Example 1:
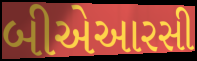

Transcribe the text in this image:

બીએઆરસી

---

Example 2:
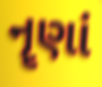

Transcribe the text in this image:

નૄણાં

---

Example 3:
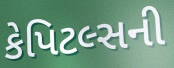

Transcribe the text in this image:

કેપિટલ્સની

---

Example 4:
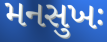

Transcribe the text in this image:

મનસુખઃ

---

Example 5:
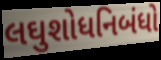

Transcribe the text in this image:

લઘુશોધનિબંધો